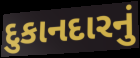
દુકાનદારનું